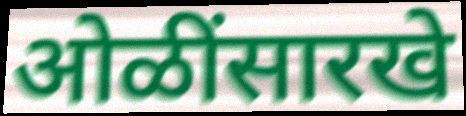
ओळींसारखे